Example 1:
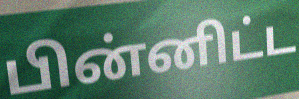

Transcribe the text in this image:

பின்னிட்ட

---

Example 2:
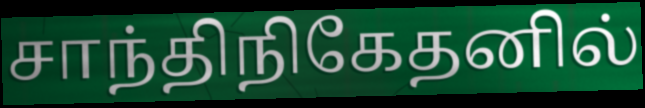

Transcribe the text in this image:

சாந்திநிகேதனில்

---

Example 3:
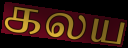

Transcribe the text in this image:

கலய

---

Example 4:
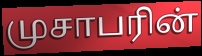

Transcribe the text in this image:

முசாபரின்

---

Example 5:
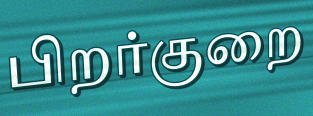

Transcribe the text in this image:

பிறர்குறை